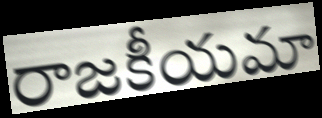
రాజకీయమా